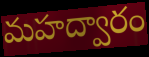
మహద్వారం